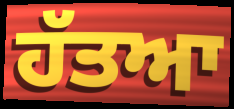
ਹੱਤਆ